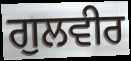
ਗੁਲਵੀਰ